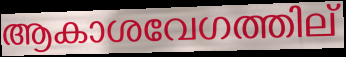
ആകാശവേഗത്തില്